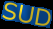
SUD